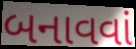
બનાવવાં